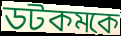
ডটকমকে